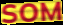
SOM